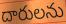
దారులను